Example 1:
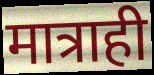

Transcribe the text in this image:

मात्राही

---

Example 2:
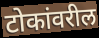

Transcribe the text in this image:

टोकांवरील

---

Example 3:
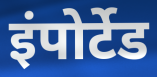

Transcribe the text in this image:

इंपोर्टेड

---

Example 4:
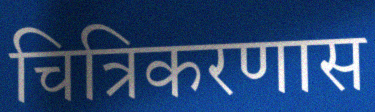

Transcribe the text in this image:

चित्रिकरणास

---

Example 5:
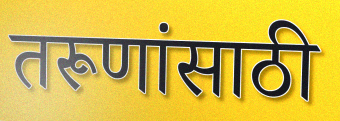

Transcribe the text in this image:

तरूणांसाठी